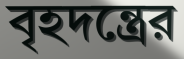
বৃহদন্ত্রের